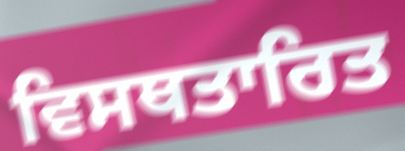
ਵਿਸਥਤਾਰਿਤ